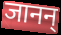
जानन्